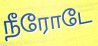
நீரோடே